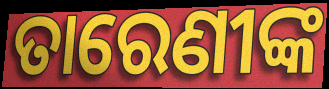
ତାରେଣୀଙ୍କ